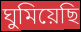
ঘুমিয়েছি